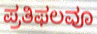
ಪ್ರತಿಫಲವೂ